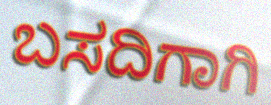
ಬಸದಿಗಾಗಿ